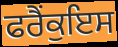
ਫਰੈਂਕੁਇਸ